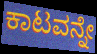
ಕಾಟವನ್ನೇ